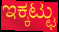
ಇಕ್ಕಟ್ಟು